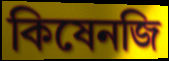
কিষেনজি